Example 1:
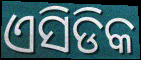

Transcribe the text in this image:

ଏସିଡିକ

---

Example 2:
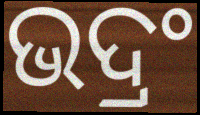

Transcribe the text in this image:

ଭଦ୍ରଂ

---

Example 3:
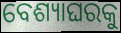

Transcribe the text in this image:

ବେଶ୍ୟାଘରକୁ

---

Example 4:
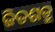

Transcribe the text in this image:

ଜିତଶତ୍ରୁ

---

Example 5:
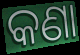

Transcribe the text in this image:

କଣା